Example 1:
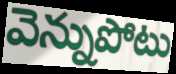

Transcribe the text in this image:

వెన్నుపోటు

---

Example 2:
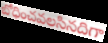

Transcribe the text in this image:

బోధించవలసినదిగా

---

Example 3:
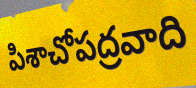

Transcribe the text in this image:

పిశాచోపద్రవాది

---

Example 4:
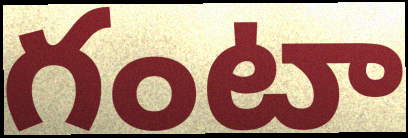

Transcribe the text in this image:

గంటా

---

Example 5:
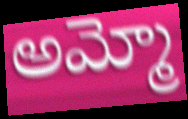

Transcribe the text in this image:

అమ్మో